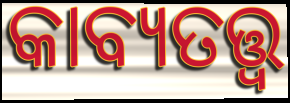
କାବ୍ୟତତ୍ତ୍ୱ